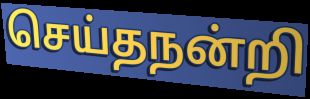
செய்தநன்றி